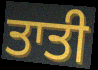
ਤਾਤੀ